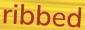
ribbed